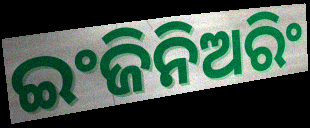
ଇଂଜିନିଅରିଂ